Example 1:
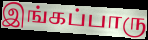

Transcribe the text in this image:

இங்கப்பாரு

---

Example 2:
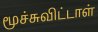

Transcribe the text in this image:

மூச்சுவிட்டாள்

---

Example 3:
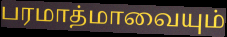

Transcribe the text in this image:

பரமாத்மாவையும்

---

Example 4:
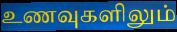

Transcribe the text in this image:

உணவுகளிலும்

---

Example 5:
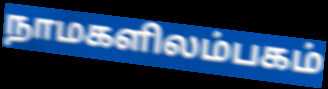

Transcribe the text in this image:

நாமகளிலம்பகம்